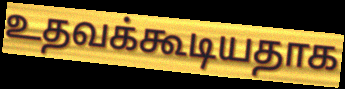
உதவக்கூடியதாக